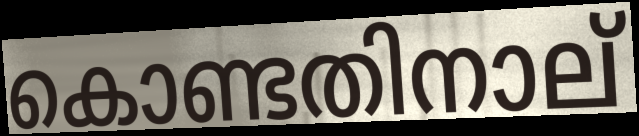
കൊണ്ടതിനാല്